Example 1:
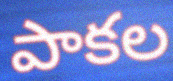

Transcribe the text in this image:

పాకల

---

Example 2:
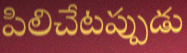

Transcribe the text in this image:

పిలిచేటప్పుడు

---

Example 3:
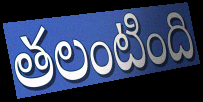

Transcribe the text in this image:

తలంటింది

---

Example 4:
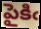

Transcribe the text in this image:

పైకిఁ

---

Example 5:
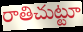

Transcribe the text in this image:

రాతిచుట్టూ